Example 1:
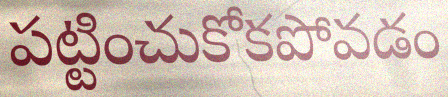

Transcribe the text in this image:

పట్టించుకోకపోవడం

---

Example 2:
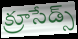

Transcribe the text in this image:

క్రూసేడ్స్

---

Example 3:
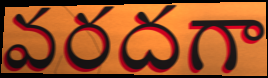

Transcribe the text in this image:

వరదగా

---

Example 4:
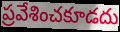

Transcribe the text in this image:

ప్రవేశించకూడదు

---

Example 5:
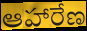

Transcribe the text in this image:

ఆహారేణ